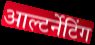
आल्टर्नेटिंग